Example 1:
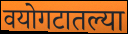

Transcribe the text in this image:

वयोगटातल्या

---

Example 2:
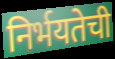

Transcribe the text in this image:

निर्भयतेची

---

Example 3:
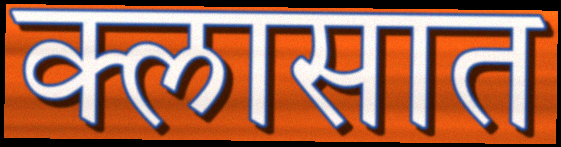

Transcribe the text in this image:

क्लासात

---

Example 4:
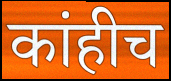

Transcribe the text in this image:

कांहीच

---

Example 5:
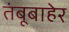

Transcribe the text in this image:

तंबूबाहेर